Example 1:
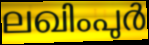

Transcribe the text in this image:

ലഖിംപുർ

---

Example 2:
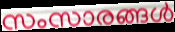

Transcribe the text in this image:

സംസാരങ്ങൾ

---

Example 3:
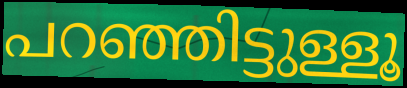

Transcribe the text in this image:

പറഞ്ഞിട്ടുള്ളൂ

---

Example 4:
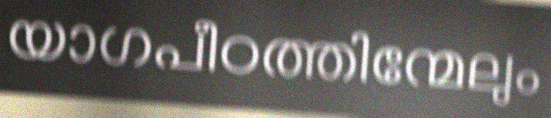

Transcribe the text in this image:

യാഗപീഠത്തിന്മേലും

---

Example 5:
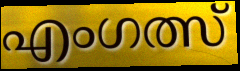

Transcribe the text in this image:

എംഗത്സ്